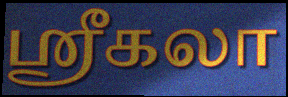
ஶ்ரீகலா